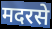
मदरसे